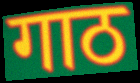
गाठ